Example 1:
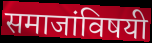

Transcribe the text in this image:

समाजांविषयी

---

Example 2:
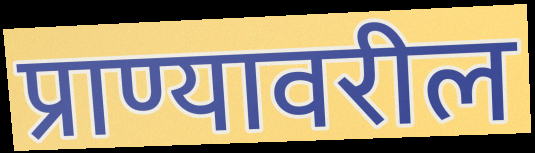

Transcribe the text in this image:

प्राण्यावरील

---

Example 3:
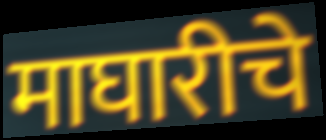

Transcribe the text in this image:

माघारीचे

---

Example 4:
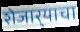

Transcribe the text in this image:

शेजार्‍याचा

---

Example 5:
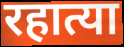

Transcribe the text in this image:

रहात्या